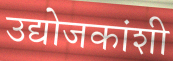
उद्योजकांशी